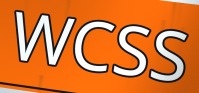
WCSS